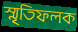
স্মৃতিফলক